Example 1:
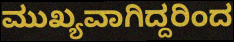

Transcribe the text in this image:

ಮುಖ್ಯವಾಗಿದ್ದರಿಂದ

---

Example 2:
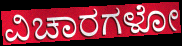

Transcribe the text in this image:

ವಿಚಾರಗಳೋ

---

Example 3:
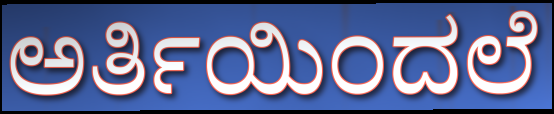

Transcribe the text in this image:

ಅರ್ತಿಯಿಂದಲೆ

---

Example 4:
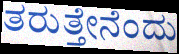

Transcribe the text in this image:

ತರುತ್ತೇನೆಂದು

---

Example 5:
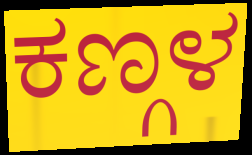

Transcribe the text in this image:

ಕಣ್ಗಳ